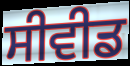
ਸੀਵੀਡ